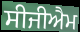
ਸੀਜੀਐਮ